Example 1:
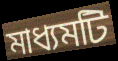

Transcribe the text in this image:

মাধ্যমটি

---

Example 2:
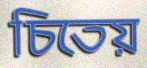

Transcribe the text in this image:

চিতেয়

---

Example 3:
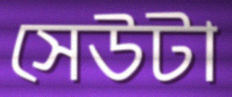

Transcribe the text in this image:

সেউটা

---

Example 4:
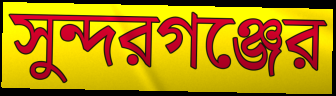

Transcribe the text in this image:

সুন্দরগঞ্জের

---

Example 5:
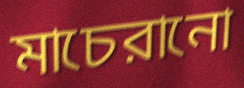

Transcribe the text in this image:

মাচেরানো